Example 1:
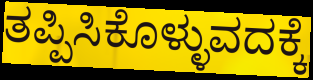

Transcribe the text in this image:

ತಪ್ಪಿಸಿಕೊಳ್ಳುವದಕ್ಕೆ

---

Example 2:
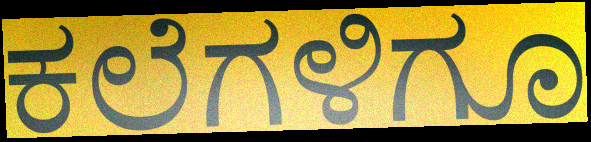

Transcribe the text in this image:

ಕಲೆಗಳಿಗೂ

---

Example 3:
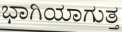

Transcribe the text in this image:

ಭಾಗಿಯಾಗುತ್ತ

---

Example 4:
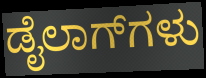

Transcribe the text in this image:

ಡೈಲಾಗ್‌ಗಳು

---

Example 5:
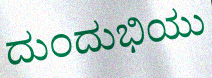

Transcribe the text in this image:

ದುಂದುಭಿಯು